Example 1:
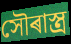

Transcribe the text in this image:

সৌৰাস্ত্ৰ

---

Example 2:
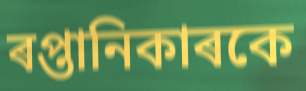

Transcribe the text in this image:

ৰপ্তানিকাৰকে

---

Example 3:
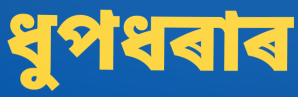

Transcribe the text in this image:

ধুপধৰাৰ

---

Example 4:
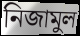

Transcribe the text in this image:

নিজামুল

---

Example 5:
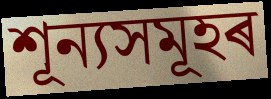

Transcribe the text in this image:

শূন্যসমূহৰ